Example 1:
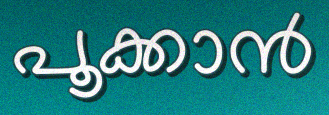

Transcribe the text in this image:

പൂക്കാൻ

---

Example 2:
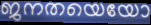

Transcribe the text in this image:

ജനതയെയോ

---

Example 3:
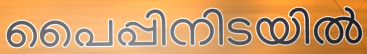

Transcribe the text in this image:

പൈപ്പിനിടയിൽ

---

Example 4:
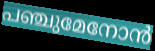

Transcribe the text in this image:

പഞ്ചുമേനോൻ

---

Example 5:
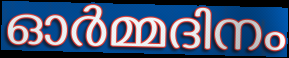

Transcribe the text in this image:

ഓർമ്മദിനം